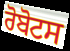
ਰੋਬੋਟਸ